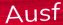
Ausf